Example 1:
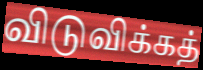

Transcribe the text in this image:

விடுவிக்கத்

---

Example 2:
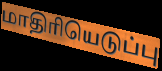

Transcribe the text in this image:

மாதிரியெடுப்பு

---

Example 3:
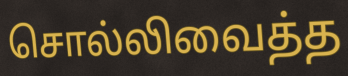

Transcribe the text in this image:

சொல்லிவைத்த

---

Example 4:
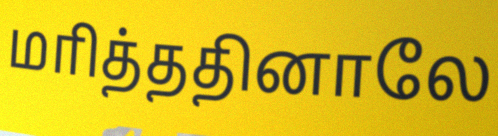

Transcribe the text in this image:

மரித்ததினாலே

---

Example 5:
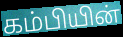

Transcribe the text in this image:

கம்பியின்